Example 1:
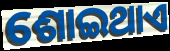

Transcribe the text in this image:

ଶୋଇଥାଏ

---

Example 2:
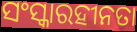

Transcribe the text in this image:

ସଂସ୍କାରହୀନତା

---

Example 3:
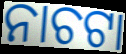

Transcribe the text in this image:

ନାଚଟା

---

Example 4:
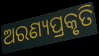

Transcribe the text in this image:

ଅରଣ୍ୟପ୍ରକୃତି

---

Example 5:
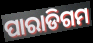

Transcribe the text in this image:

ପାରାଡିଗମ